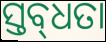
ସ୍ତବ୍‍ଧତା